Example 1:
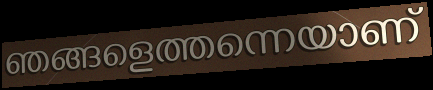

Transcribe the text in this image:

ഞങ്ങളെത്തന്നെയാണ്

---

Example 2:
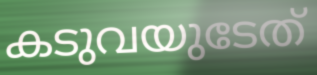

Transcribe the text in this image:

കടുവയുടേത്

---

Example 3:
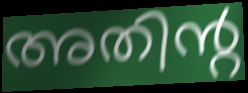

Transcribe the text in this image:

അതിന്റ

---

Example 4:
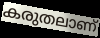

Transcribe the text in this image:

കരുതലാണ്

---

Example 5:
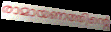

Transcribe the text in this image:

രാമായണത്തിന്റെ